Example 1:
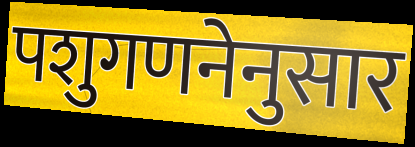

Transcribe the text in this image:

पशुगणनेनुसार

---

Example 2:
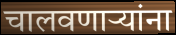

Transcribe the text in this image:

चालवणार्‍यांना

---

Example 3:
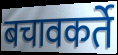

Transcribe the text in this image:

बचावकर्ते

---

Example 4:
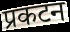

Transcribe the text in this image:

प्रकटन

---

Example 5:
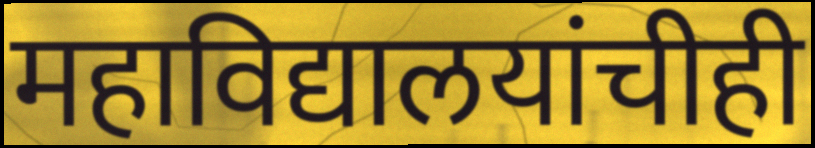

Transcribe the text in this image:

महाविद्यालयांचीही